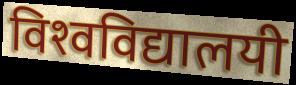
विश्वविद्यालयी